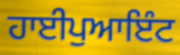
ਹਾਈਪੁਆਇੰਟ